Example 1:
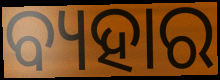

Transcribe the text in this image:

ବ୍ୟହାର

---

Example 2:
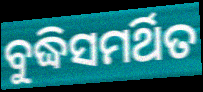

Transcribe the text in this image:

ବୁଦ୍ଧିସମର୍ଥିତ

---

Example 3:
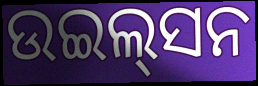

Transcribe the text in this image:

ଉଇଲ୍‌ସନ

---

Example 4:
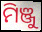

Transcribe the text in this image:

ମିଞ୍ଜୁ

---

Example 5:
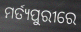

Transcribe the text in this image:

ମର୍ତ୍ୟପୁରୀରେ